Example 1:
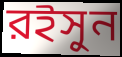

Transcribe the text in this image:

রইসুন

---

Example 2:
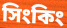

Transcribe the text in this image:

সিংকিং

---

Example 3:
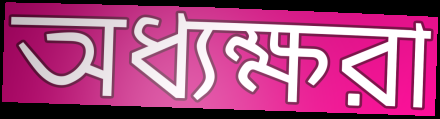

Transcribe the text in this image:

অধ্যক্ষরা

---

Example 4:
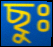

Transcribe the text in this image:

ছুঃ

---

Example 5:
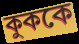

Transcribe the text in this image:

কুককে